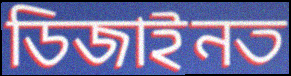
ডিজাইনত